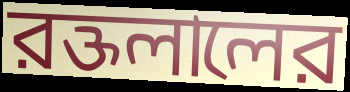
রক্তলালের